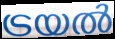
ട്രയൽ